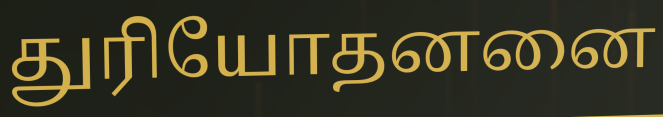
துரியோதனனை